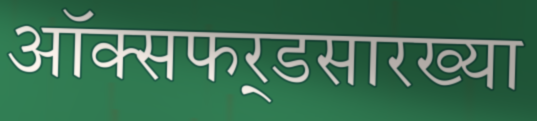
ऑक्सफर्डसारख्या